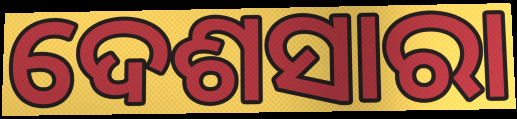
ଦେଶସାରା